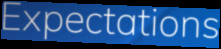
Expectations